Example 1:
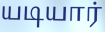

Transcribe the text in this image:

யடியார்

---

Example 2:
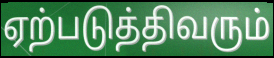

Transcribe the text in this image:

ஏற்படுத்திவரும்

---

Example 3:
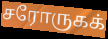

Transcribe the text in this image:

சரோருகக்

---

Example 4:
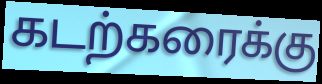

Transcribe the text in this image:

கடற்கரைக்கு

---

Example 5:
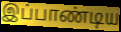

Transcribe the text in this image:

இப்பாண்டிய